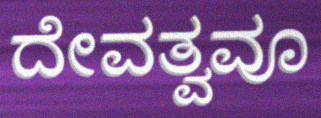
ದೇವತ್ವವೂ